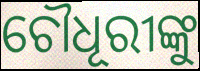
ଚୌଧୂରୀଙ୍କୁ